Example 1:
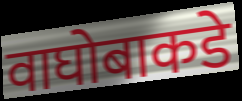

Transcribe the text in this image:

वाघोबाकडे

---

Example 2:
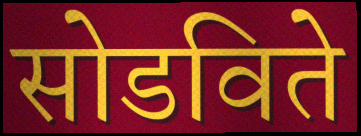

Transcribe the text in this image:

सोडविते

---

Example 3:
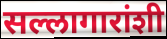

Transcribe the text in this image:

सल्लागारांशी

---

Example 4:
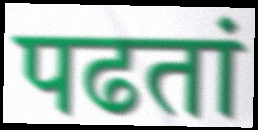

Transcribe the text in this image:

पढतां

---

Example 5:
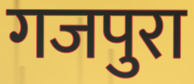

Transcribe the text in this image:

गजपुरा